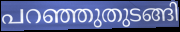
പറഞ്ഞുതുടങ്ങി